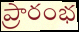
ప్రారంభ